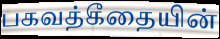
பகவத்கீதையின்